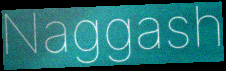
Naggash